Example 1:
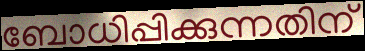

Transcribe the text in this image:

ബോധിപ്പിക്കുന്നതിന്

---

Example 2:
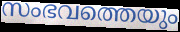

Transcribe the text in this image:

സംഭവത്തെയും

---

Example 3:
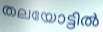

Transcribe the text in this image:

തലയോട്ടിൽ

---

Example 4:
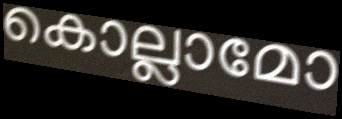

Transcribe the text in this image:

കൊല്ലാമോ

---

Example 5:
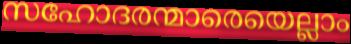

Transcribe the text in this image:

സഹോദരന്മാരെയെല്ലാം